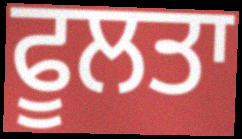
ਫੂਲਤਾ